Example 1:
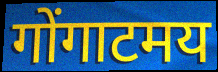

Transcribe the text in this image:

गोंगाटमय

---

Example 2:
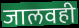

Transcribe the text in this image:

जालवही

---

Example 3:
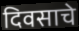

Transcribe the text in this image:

दिवसाचे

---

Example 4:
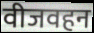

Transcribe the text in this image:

वीजवहन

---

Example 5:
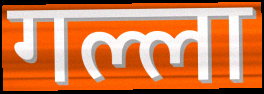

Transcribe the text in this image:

गल्ला